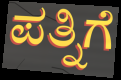
ಪತ್ನಿಗೆ